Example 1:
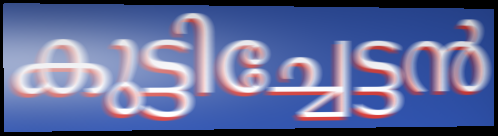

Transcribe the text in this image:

കുട്ടിച്ചേട്ടൻ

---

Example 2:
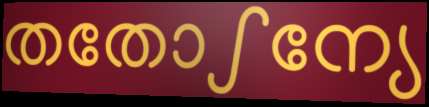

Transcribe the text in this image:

തതോഽന്യേ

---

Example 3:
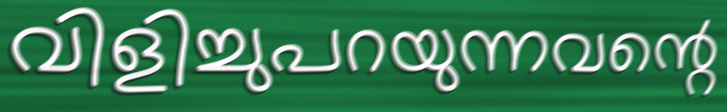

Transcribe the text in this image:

വിളിച്ചുപറയുന്നവന്റെ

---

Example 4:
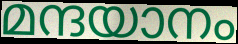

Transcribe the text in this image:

മന്ദയാനം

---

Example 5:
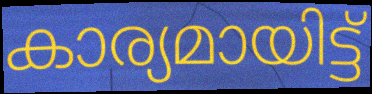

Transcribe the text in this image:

കാര്യമായിട്ട്